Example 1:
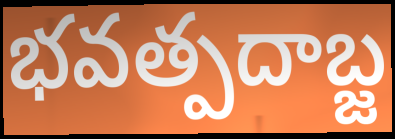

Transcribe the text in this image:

భవత్పదాబ్జ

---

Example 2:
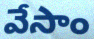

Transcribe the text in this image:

వేసాం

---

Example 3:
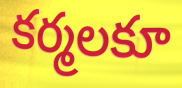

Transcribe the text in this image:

కర్మలకూ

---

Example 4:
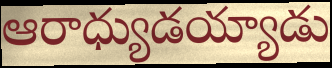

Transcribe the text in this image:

ఆరాధ్యుడయ్యాడు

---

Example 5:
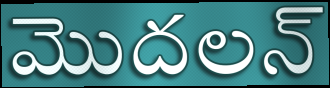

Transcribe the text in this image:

మొదలన్